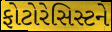
ફોટોરેસિસ્ટને